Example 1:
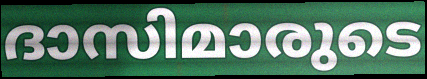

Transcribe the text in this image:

ദാസിമാരുടെ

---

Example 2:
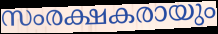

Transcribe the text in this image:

സംരക്ഷകരായും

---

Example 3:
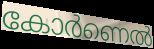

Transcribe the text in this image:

കോർണെൽ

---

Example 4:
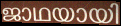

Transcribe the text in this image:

ജാഥയായി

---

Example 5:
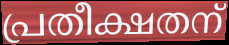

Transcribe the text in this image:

പ്രതീക്ഷതന്